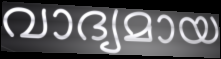
വാദ്യമായ